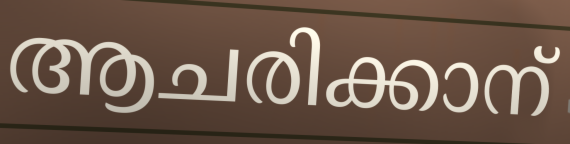
ആചരിക്കാന്